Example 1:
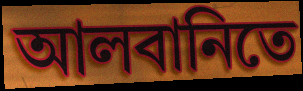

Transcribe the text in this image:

আলবানিতে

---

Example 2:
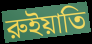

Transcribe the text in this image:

রুইয়াতি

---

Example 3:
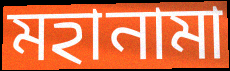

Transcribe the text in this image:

মহানামা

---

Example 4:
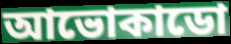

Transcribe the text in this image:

আভোকাডো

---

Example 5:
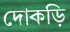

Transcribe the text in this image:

দোকড়ি